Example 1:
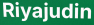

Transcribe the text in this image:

Riyajudin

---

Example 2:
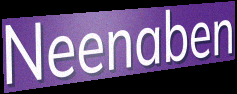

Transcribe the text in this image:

Neenaben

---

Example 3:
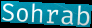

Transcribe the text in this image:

Sohrab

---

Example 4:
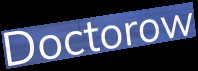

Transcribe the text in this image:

Doctorow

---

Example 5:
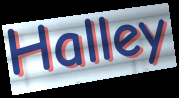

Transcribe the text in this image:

Halley